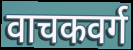
वाचकवर्ग